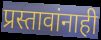
प्रस्तावांनाही